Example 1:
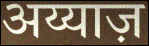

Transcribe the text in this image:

अय्याज़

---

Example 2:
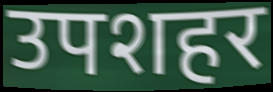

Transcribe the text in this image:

उपशहर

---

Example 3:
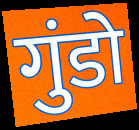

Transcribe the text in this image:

गुंडो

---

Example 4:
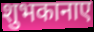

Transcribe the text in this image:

शुभकानाए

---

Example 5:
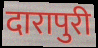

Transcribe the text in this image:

दारापुरी